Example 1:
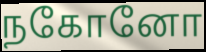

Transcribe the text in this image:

நகோனோ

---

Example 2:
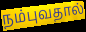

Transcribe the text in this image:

நம்புவதால்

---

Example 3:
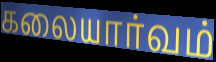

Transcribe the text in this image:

கலையார்வம்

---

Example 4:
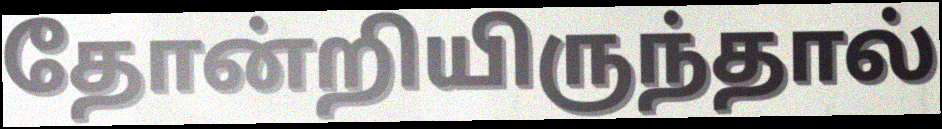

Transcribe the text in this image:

தோன்றியிருந்தால்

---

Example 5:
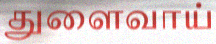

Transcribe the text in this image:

துளைவாய்